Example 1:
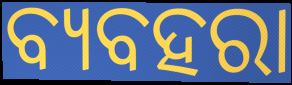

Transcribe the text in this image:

ବ୍ୟବହରା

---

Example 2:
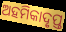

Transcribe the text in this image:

ଅହମିକାଦୃପ୍ତ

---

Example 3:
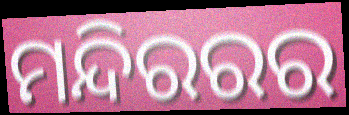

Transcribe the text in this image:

ମନ୍ଦିରରର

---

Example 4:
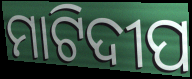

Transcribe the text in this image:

ମାଟିଦୀପ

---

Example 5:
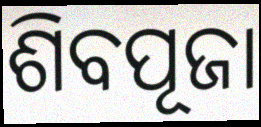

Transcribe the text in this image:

ଶିବପୂଜା